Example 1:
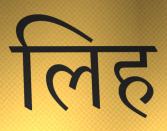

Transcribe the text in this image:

लिह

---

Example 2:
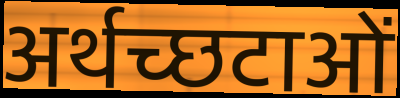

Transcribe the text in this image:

अर्थच्छटाओं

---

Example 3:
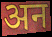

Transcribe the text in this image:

अन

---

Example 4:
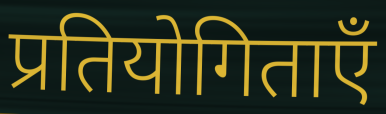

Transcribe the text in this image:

प्रतियोगिताएँ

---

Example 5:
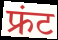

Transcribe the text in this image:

फ्रंट